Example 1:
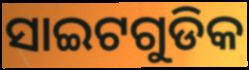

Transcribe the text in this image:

ସାଇଟଗୁଡିକ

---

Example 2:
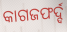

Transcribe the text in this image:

କାଗଜଫର୍ଦ୍ଦ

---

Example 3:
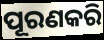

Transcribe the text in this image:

ପୂରଣକରି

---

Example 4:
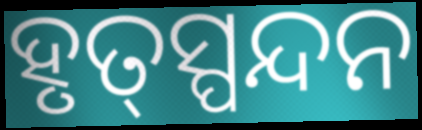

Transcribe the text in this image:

ହୃତ୍‌ସ୍ପନ୍ଦନ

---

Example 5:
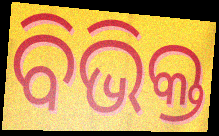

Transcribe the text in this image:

ବିଭିକ୍ତ